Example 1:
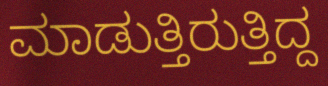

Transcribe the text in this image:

ಮಾಡುತ್ತಿರುತ್ತಿದ್ದ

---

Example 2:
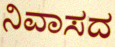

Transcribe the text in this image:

ನಿವಾಸದ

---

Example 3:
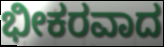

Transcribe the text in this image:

ಭೀಕರವಾದ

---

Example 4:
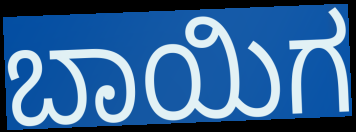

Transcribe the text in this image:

ಬಾಯಿಗ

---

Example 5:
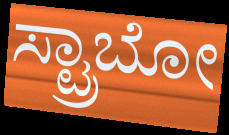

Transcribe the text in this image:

ಸ್ಟ್ರಾಬೋ